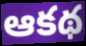
ఆకథ